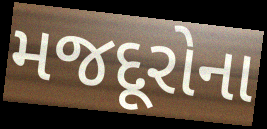
મજદૂરોના